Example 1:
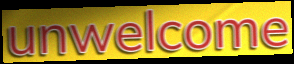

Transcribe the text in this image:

unwelcome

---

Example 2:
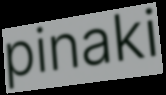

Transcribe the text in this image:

pinaki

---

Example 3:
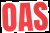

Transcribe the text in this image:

OAS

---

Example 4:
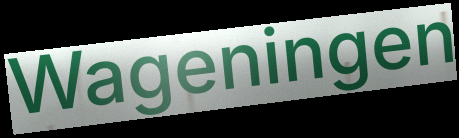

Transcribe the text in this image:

Wageningen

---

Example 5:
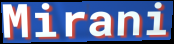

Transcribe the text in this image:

Mirani